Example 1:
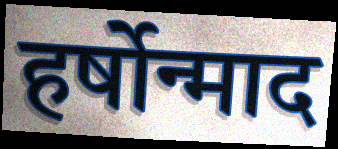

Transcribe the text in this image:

हर्षोन्माद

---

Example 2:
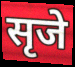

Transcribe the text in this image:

सृजे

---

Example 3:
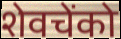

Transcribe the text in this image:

शेवचेंको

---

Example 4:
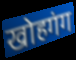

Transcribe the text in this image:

खोहगंग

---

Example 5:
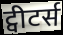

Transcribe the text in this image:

ट्वीटर्स